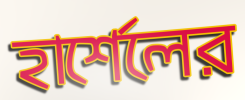
হার্শেলের